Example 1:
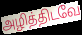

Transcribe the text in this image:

அழித்திடவே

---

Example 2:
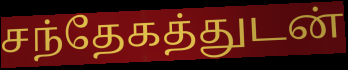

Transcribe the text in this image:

சந்தேகத்துடன்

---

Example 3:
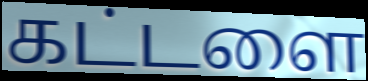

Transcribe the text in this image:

கட்டளை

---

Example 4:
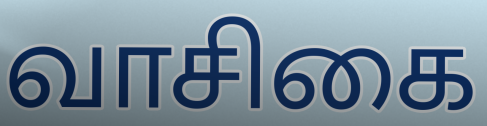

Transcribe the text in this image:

வாசிகை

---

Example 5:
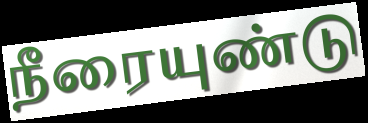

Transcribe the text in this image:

நீரையுண்டு